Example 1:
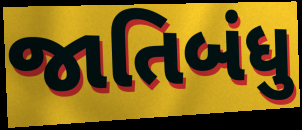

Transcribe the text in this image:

જાતિબંધુ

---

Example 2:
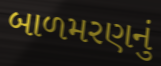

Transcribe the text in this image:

બાળમરણનું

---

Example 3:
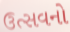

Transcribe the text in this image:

ઉત્સવનો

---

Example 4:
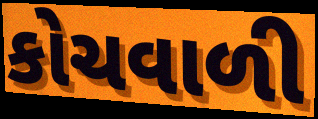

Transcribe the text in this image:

કોચવાળી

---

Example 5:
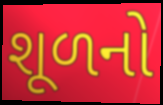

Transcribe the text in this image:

શૂળનો